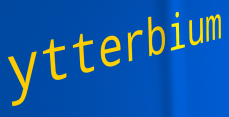
ytterbium